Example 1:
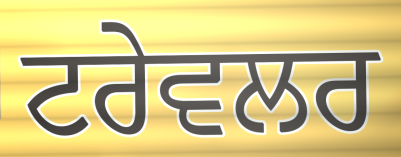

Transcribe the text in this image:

ਟਰੇਵਲਰ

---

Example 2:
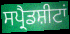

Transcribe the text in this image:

ਸਪ੍ਰੈਡਸ਼ੀਟਾਂ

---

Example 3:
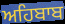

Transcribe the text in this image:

ਅਹਿਬਾਬ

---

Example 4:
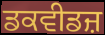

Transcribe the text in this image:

ਡਕਵੀਡਜ਼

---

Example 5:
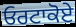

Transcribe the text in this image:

ਓਰਟਾਕੋਏ